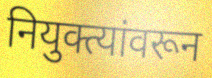
नियुक्त्यांवरून